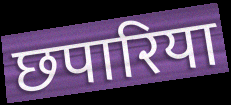
छपारिया